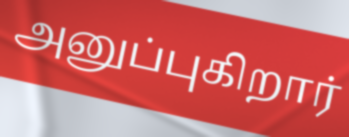
அனுப்புகிறார்